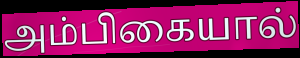
அம்பிகையால்